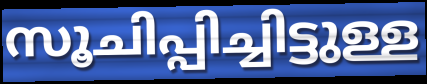
സൂചിപ്പിച്ചിട്ടുള്ള